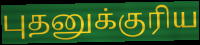
புதனுக்குரிய